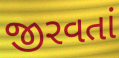
જીરવતાં